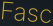
Fasc